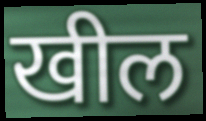
खील